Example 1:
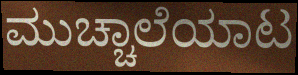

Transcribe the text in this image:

ಮುಚ್ಚಾಲೆಯಾಟ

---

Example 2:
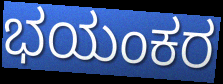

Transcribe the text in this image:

ಭಯಂಕರ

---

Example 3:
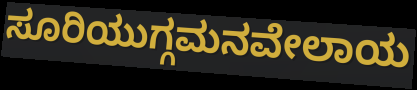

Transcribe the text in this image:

ಸೂರಿಯುಗ್ಗಮನವೇಲಾಯ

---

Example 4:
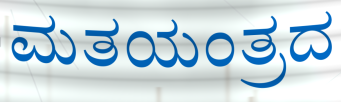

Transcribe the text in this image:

ಮತಯಂತ್ರದ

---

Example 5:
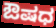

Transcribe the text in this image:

ಔಷಧ